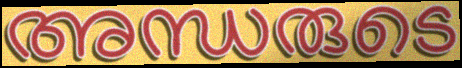
അന്ധരുടെ